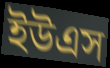
ইউএস